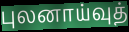
புலனாய்வுத்